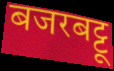
बजरबट्टू